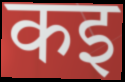
कइ